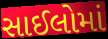
સાઈલોમાં